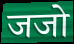
जजो